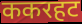
ककरहट